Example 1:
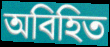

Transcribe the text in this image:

অবিহিত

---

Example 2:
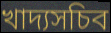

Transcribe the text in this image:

খাদ্যসচিব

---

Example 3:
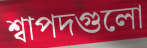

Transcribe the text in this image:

শ্বাপদগুলো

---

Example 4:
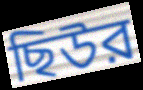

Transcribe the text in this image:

ছিউর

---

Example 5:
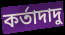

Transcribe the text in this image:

কর্তাদাদু